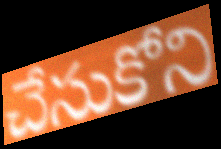
చేసుకోని